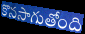
కొనసాగుతోంది